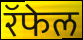
रॅफेल